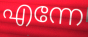
എന്നേ